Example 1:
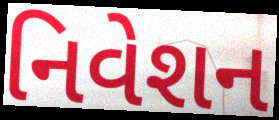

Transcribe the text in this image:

નિવેશન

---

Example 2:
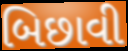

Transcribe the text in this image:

બિછાવી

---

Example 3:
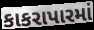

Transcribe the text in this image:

કાકરાપારમાં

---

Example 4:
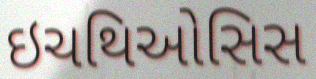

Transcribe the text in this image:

ઇચથિઓસિસ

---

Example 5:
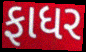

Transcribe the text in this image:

ફાધર